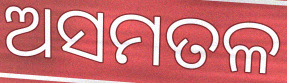
ଅସମତଳ